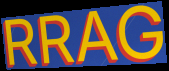
RRAG